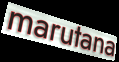
marutana